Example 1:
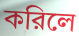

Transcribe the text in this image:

করিলে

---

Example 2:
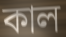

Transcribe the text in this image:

কাল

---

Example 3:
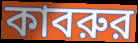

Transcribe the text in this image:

কাবরুর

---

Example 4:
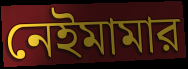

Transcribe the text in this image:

নেইমামার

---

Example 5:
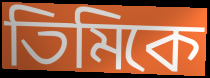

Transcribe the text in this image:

তিমিকে